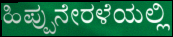
ಹಿಪ್ಪುನೇರಳೆಯಲ್ಲಿ